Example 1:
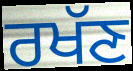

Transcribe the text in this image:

ਰਖੱਣ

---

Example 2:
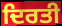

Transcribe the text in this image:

ਦਿਰਤੀ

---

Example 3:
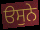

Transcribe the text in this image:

ੳਸੁਨੇ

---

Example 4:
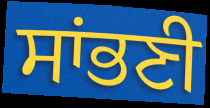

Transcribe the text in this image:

ਸਾਂਭਣੀ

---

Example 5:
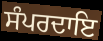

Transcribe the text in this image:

ਸੰਪਰਦਾਇ